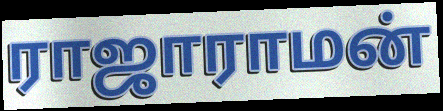
ராஜாராமன்